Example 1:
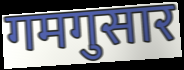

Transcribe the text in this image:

गमगुसार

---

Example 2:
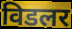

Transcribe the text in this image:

विडलर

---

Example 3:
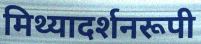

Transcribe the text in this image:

मिथ्यादर्शनरूपी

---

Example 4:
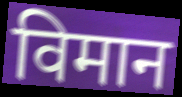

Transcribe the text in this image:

विमान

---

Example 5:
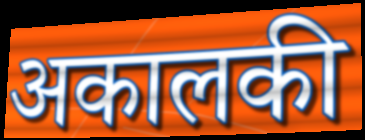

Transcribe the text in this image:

अकालकी